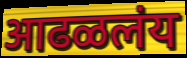
आढळलंय